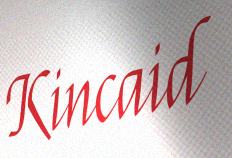
Kincaid